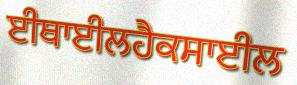
ਈਥਾਈਲਹੈਕਸਾਈਲ